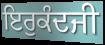
ਇਰੁਕੰਦਜੀ